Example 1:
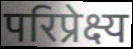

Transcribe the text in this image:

परिप्रेक्ष्य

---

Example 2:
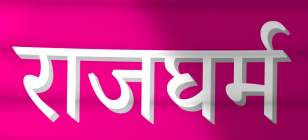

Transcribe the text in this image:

राजघर्म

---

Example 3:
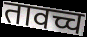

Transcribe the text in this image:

तावच्च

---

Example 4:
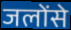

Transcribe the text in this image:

जलोंसे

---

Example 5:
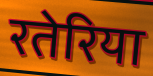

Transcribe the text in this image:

रतेरिया